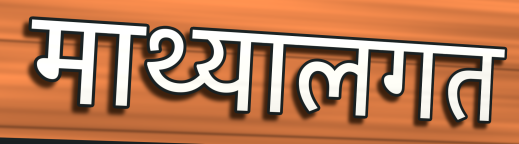
माथ्यालगत